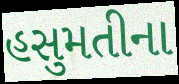
હસુમતીના